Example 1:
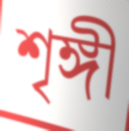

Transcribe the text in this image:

শৃঙ্গী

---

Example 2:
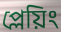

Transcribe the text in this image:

প্লেয়িং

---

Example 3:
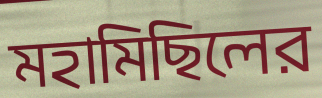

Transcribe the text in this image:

মহামিছিলের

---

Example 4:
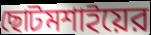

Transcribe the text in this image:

ছোটমশাইয়ের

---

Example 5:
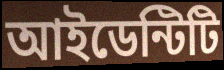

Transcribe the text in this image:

আইডেন্টিটি